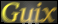
Guix